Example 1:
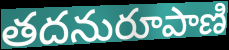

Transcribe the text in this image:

తదనురూపాణి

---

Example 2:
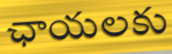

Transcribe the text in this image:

ఛాయలకు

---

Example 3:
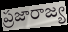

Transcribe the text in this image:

ప్రజారాజ్య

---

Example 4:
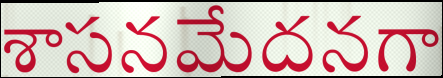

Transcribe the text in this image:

శాసనమేదనగా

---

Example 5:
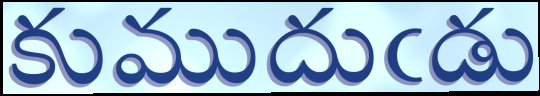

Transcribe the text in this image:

కుముదుఁడు